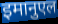
इमानुएल